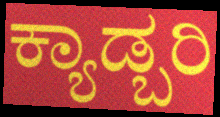
ಕ್ಯಾಡ್ಬರಿ